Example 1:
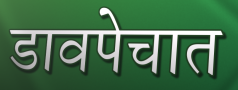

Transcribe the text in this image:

डावपेचात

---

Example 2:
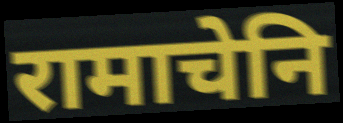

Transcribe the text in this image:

रामाचेनि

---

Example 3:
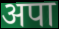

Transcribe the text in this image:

अपा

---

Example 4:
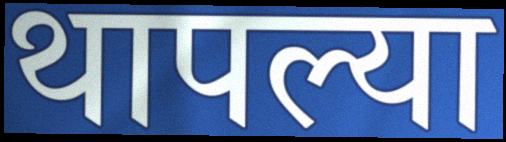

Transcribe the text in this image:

थापल्या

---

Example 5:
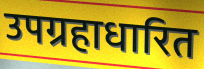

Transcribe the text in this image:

उपग्रहाधारित